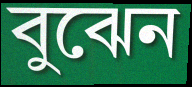
বুঝেন